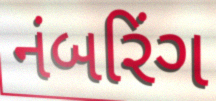
નંબરિંગ